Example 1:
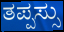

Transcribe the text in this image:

ತಪ್ಪಸ್ಸು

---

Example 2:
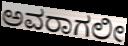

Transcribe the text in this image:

ಅವರಾಗಲೀ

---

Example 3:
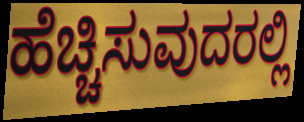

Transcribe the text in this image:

ಹೆಚ್ಚಿಸುವುದರಲ್ಲಿ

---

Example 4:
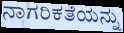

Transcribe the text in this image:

ನಾಗರಿಕತೆಯನ್ನು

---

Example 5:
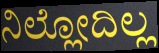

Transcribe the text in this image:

ನಿಲ್ಲೋದಿಲ್ಲ